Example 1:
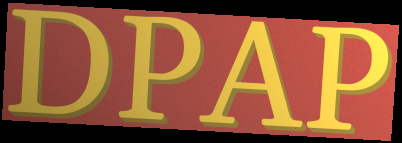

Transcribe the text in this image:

DPAP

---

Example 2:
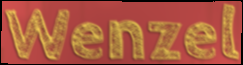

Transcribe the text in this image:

Wenzel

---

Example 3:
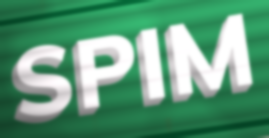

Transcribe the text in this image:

SPIM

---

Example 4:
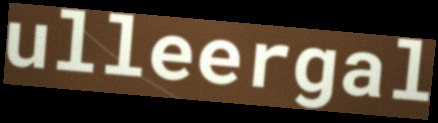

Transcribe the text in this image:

ulleergal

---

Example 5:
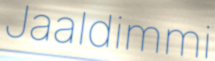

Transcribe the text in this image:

Jaaldimmi